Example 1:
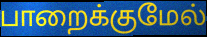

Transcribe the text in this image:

பாறைக்குமேல்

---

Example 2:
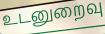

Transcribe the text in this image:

உடனுறைவு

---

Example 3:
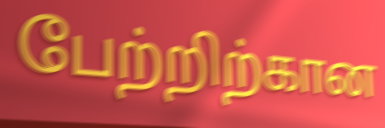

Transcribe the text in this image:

பேற்றிற்கான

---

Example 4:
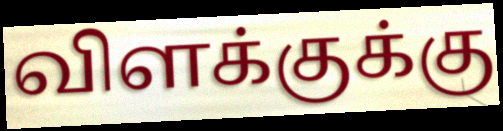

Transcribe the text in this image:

விளக்குக்கு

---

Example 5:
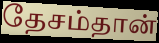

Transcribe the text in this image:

தேசம்தான்